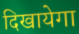
दिखायेगा